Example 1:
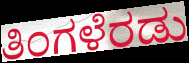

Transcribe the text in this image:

ತಿಂಗಳೆರಡು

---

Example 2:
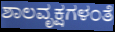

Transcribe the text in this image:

ಶಾಲವೃಕ್ಷಗಳಂತೆ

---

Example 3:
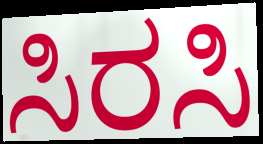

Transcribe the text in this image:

ಸಿರಸಿ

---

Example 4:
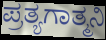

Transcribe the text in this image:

ಪ್ರತ್ಯಗಾತ್ಮನಿ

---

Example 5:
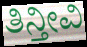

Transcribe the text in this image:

ತಿನ್ತೀವಿ